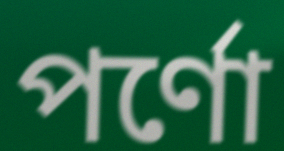
পর্ণো